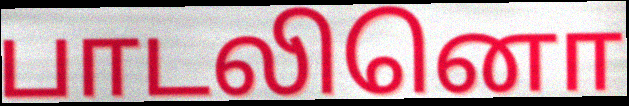
பாடலினொ